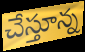
చేస్తూన్న